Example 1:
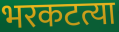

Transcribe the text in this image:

भरकटत्या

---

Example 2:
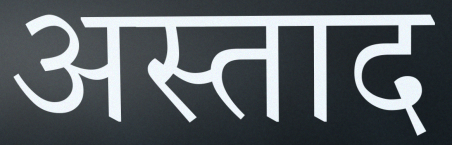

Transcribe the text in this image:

अस्ताद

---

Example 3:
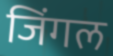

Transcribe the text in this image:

जिंगल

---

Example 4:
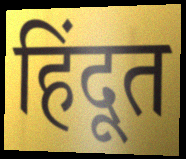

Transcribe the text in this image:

हिंदूत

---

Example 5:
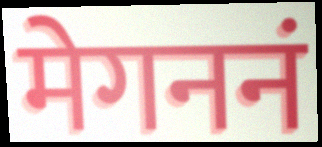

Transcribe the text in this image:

मेगननं